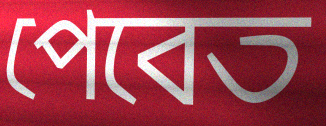
পেবেত